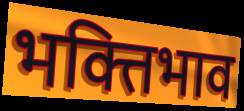
भक्तिभाव